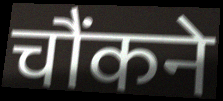
चौंकने